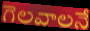
గెలవాలనే